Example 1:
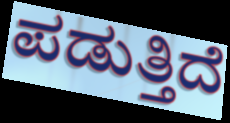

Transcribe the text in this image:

ಪಡುತ್ತಿದೆ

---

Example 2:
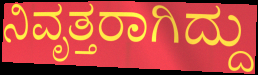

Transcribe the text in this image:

ನಿವೃತ್ತರಾಗಿದ್ದು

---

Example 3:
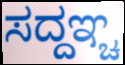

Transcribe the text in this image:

ಸದ್ದಞ್ಚ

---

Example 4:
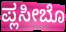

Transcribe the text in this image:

ಪ್ಲಸೀಬೊ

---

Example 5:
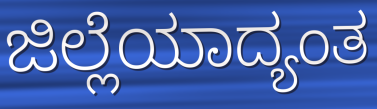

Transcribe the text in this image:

ಜಿಲ್ಲೆಯಾದ್ಯಂತ